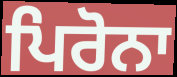
ਪਿਰੋਨਾ